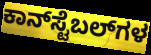
ಕಾನ್‌ಸ್ಟೆಬಲ್‌ಗಳ